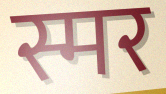
स्मर